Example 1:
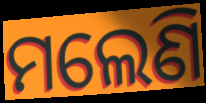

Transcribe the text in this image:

ମଲେଣି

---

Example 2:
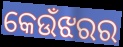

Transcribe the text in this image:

କେଉଁଝରର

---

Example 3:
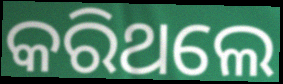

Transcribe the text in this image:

କରିଥଲେ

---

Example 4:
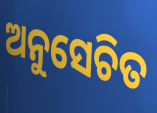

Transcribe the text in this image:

ଅନୁସେଚିତ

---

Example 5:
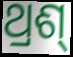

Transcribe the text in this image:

ଥ୍ରଶ୍